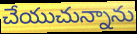
చేయుచున్నాను